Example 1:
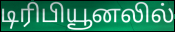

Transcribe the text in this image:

டிரிபியூனலில்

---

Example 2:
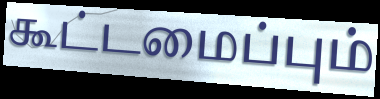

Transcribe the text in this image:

கூட்டமைப்பும்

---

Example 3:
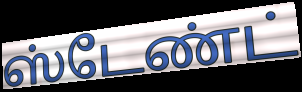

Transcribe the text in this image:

ஸ்டேண்ட்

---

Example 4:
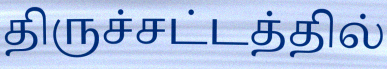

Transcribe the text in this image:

திருச்சட்டத்தில்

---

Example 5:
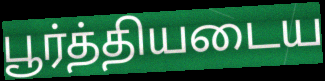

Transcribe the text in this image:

பூர்த்தியடைய